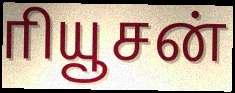
ரியூசன்